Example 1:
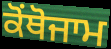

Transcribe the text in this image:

ਕੋਂਥੋਜਾਮ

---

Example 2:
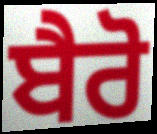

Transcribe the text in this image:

ਬੈਰੋ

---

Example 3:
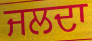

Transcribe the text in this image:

ਜਲਦਾ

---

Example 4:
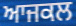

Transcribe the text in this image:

ਆਜਕਲ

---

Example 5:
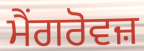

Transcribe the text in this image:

ਮੈਂਗਰੋਵਜ਼